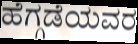
ಹೆಗ್ಗಡೆಯವರ